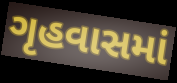
ગૃહવાસમાં